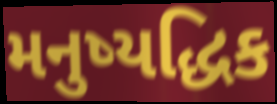
મનુષ્યદ્ધિક